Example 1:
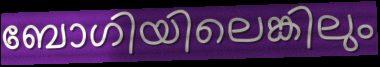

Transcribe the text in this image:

ബോഗിയിലെങ്കിലും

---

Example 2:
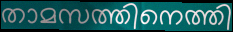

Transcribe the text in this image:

താമസത്തിനെത്തി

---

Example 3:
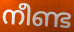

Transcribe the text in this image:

നീണ്ട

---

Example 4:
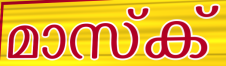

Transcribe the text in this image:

മാസ്‌ക്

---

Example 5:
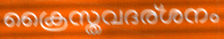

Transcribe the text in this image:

ക്രൈസ്തവദര്ശനം